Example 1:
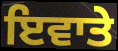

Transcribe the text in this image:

ਇਵਾਤੇ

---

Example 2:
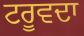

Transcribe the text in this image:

ਟਰੂਵਦਾ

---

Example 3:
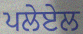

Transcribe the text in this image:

ਪਲੇਏਲ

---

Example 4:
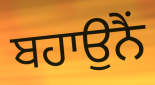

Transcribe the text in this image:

ਬਹਾਉਨੈਂ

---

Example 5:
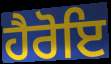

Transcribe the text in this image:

ਹੈਰੋਇ